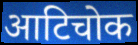
आटिचोक